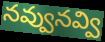
నవ్వునవ్వి